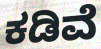
ಕಡಿವೆ